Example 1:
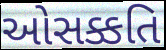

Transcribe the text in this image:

ઓસક્કતિ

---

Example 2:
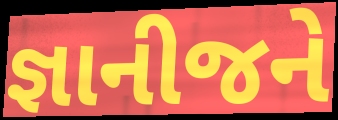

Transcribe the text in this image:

જ્ઞાનીજને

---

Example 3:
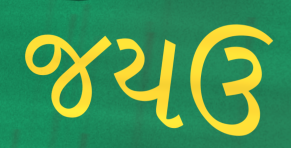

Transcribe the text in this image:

જયઉ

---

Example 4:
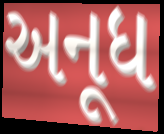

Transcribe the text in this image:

અનૂધ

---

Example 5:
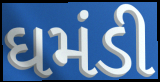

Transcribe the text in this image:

ઘમંડી